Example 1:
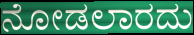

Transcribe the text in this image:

ನೋಡಲಾರದು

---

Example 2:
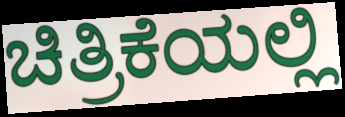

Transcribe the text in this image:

ಚಿತ್ರಿಕೆಯಲ್ಲಿ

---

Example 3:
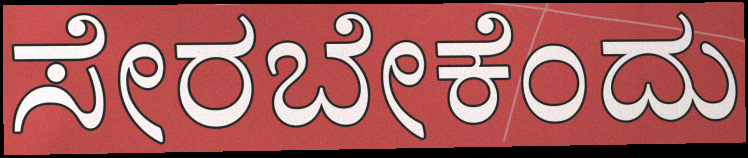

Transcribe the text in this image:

ಸೇರಬೇಕೆಂದು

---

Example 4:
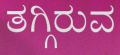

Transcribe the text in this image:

ತಗ್ಗಿರುವ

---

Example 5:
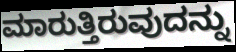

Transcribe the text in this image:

ಮಾರುತ್ತಿರುವುದನ್ನು